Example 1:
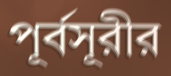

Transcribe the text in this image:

পূর্বসূরীর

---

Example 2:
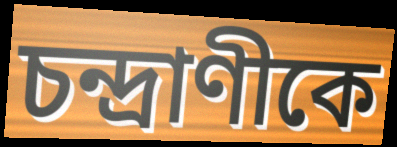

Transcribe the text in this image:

চন্দ্রাণীকে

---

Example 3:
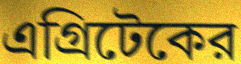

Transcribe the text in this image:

এগ্রিটেকের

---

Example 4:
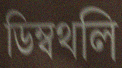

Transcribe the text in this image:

ডিম্বথলি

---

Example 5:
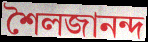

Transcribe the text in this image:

শৈলজানন্দ